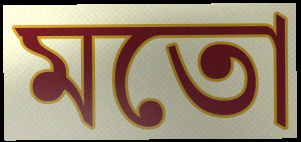
মতো